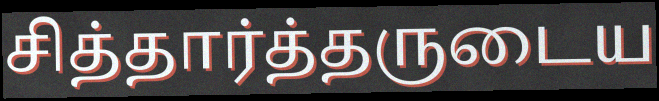
சித்தார்த்தருடைய